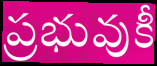
ప్రభువుకీ